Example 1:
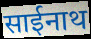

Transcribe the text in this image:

साईनाथ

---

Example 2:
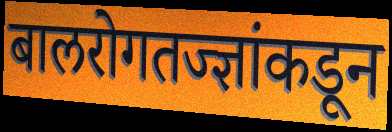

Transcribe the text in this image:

बालरोगतज्ज्ञांकडून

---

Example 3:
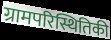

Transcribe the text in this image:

ग्रामपरिस्थितिकी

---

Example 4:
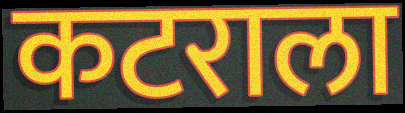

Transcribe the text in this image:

कटराला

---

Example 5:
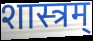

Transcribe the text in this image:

शास्त्रम्